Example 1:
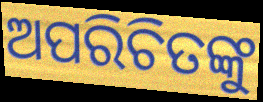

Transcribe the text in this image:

ଅପରିଚିତଙ୍କୁ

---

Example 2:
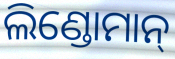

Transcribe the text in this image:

ଲିଣ୍ଡୋମାନ୍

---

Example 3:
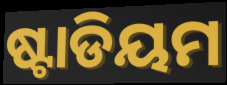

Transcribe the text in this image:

ଷ୍ଟାଡିୟମ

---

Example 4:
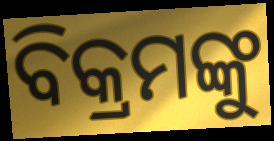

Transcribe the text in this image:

ବିକ୍ରମଙ୍କୁ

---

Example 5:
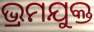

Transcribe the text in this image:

ଭ୍ରମଯୁକ୍ତ